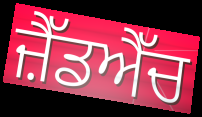
ਜ਼ੈੱਡਐੱਚ